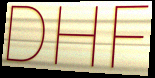
DHF